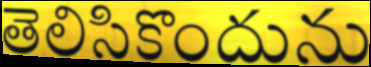
తెలిసికొందును